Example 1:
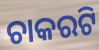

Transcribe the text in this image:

ଚାକରଟି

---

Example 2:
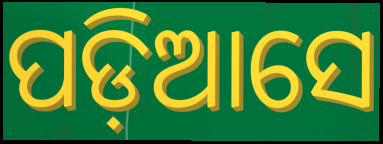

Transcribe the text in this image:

ପଡ଼ିଆସେ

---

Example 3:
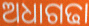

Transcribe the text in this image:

ଅଧାଗଢା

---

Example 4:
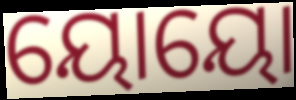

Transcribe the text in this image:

ୟୋୟୋ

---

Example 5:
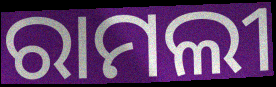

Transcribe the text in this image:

ରାମଲୀ